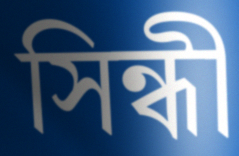
সিন্ধী